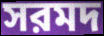
সরমদ